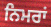
ਨਿਮਰਾਂ